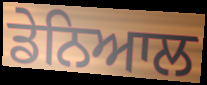
ਡੇਨਿਆਲ